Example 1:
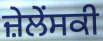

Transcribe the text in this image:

ਜ਼ੇਲੇਂਸਕੀ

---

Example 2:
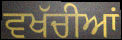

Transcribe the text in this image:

ਵਖੱਚੀਆਂ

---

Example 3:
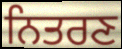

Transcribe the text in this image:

ਨਿਤਰਣ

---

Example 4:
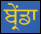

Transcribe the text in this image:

ਬ੍ਰੇਂਡਾ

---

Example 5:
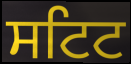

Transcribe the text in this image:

ਸਟਿਟ